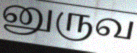
னுருவ